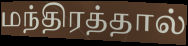
மந்திரத்தால்